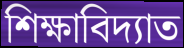
শিক্ষাবিদ্যাত